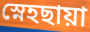
স্নেহছায়া